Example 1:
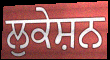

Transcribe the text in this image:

ਲੁਕੇਸ਼ਨ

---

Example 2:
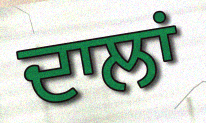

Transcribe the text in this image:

ਦਾਲਾਂ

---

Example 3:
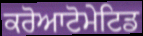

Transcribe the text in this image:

ਕਰੋਆਟੋਮੇਟਿਡ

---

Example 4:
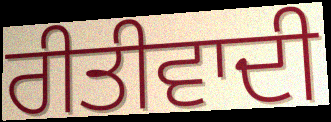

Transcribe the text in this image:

ਰੀਤੀਵਾਦੀ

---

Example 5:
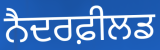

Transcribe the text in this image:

ਨੈਦਰਫ਼ੀਲਡ